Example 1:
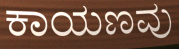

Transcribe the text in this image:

ಕಾಯಣವು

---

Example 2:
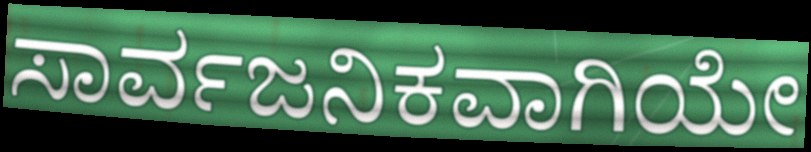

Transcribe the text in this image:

ಸಾರ್ವಜನಿಕವಾಗಿಯೇ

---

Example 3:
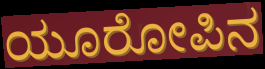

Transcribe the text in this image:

ಯೂರೋಪಿನ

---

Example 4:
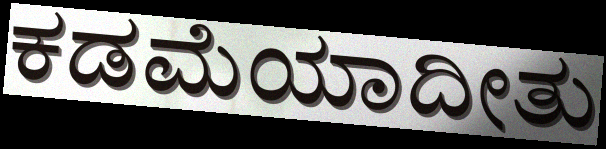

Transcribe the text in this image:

ಕಡಮೆಯಾದೀತು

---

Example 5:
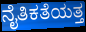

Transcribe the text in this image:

ನೈತಿಕತೆಯತ್ತ